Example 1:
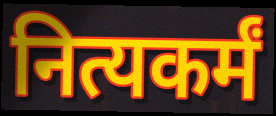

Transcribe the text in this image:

नित्यकर्मं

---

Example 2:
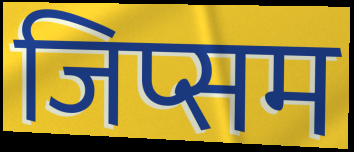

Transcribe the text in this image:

जिप्सम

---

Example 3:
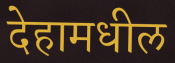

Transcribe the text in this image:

देहामधील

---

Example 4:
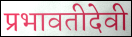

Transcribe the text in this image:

प्रभावतीदेवी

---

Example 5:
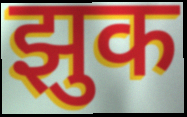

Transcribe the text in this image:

झुक